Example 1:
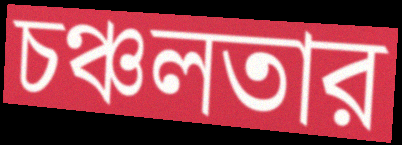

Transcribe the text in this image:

চঞ্চলতার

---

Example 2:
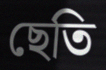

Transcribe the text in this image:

ছেতি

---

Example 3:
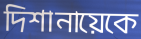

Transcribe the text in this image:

দিশানায়েকে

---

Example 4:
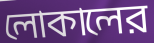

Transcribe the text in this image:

লোকালের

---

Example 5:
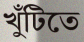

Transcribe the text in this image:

খুঁটিতে